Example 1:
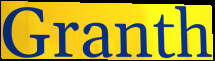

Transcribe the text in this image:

Granth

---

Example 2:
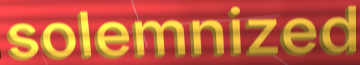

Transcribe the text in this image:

solemnized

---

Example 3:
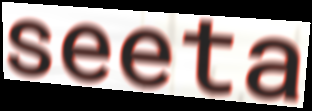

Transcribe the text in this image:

seeta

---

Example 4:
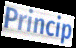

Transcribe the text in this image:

Princip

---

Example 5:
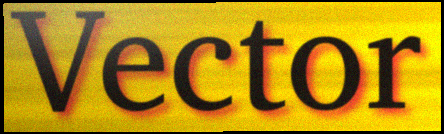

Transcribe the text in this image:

Vector